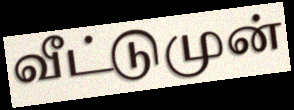
வீட்டுமுன்